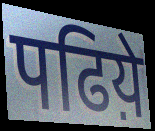
पढिय़े